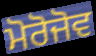
ਮੋਰੋਜੋਵ